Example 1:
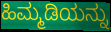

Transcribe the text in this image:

ಹಿಮ್ಮಡಿಯನ್ನು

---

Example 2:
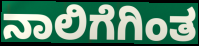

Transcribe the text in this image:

ನಾಲಿಗೆಗಿಂತ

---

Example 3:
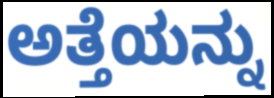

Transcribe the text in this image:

ಅತ್ತೆಯನ್ನು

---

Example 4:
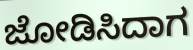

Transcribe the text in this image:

ಜೋಡಿಸಿದಾಗ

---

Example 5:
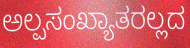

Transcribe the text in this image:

ಅಲ್ಪಸಂಖ್ಯಾತರಲ್ಲದ